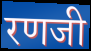
रणजी